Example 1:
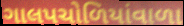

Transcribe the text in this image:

ગાલપચોળિયાંવાળા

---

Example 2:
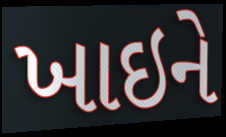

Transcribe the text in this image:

ખાઇને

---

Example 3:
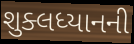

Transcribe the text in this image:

શુક્લધ્યાનની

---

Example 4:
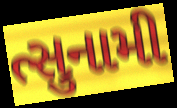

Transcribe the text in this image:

ત્સુનામી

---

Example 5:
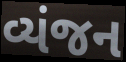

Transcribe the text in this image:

વ્યંજન